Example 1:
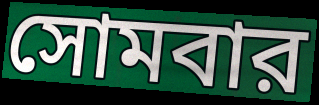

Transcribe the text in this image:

সোমবার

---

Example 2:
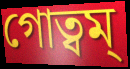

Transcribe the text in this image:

গোত্বম্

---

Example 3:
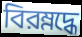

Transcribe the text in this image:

বিরম্নদ্ধে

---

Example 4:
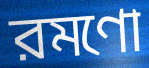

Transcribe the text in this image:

রমণো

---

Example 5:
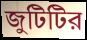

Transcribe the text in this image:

জুটিটির